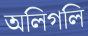
অলিগলি